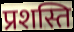
प्रशस्ति